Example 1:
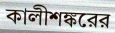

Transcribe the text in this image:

কালীশঙ্করের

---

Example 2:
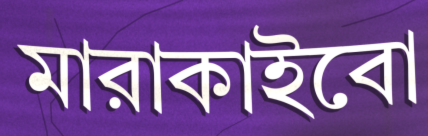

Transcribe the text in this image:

মারাকাইবো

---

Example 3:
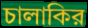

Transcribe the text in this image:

চালাকির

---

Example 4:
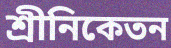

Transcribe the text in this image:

শ্রীনিকেতন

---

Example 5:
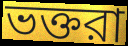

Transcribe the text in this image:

ভক্তরা